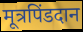
मूत्रपिंडदान